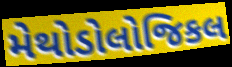
મેથોડોલોજિકલ